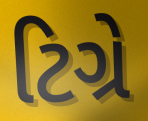
ટિગ્રે